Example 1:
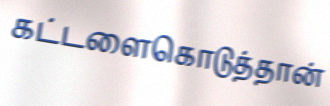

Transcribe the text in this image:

கட்டளைகொடுத்தான்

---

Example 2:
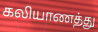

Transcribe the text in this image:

கலியாணத்து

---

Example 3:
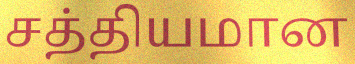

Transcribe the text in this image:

சத்தியமான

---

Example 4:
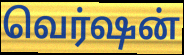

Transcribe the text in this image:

வெர்ஷன்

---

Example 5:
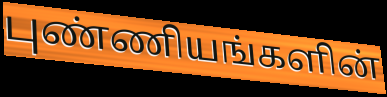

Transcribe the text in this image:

புண்ணியங்களின்